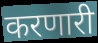
करणारी